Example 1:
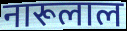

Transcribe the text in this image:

नारूलाल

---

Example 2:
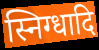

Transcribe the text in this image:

स्निग्धादि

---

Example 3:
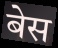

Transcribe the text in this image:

बेस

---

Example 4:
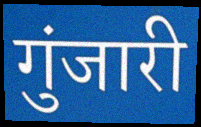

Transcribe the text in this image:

गुंजारी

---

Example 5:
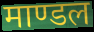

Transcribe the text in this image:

माण्डल